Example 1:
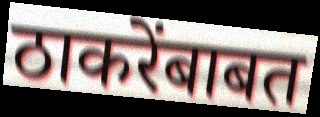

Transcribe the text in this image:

ठाकरेंबाबत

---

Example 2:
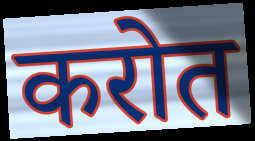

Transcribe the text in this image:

करोत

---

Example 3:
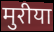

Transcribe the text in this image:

मुरीया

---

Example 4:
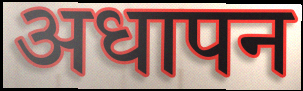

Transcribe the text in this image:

अधापन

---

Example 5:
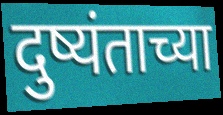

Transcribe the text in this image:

दुष्यंताच्या